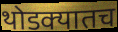
थोडक्यातच